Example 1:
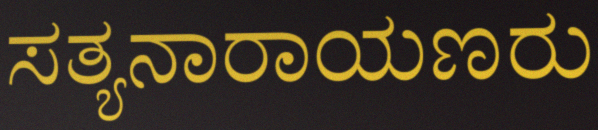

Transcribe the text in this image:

ಸತ್ಯನಾರಾಯಣರು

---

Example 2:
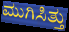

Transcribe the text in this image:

ಮುಗಿಸಿತ್ತು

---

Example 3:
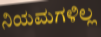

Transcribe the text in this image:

ನಿಯಮಗಳಿಲ್ಲ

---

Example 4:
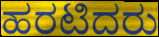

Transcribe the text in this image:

ಹರಟಿದರು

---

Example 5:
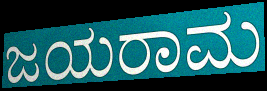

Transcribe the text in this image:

ಜಯರಾಮ